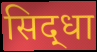
सिद्धा